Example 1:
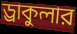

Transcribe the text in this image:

ড্রাকুলার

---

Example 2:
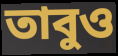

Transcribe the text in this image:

তাবুও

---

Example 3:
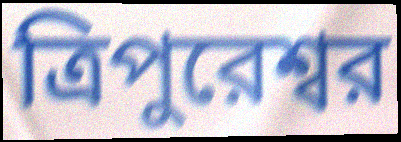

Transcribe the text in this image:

ত্রিপুরেশ্বর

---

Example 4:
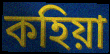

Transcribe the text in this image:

কহিয়া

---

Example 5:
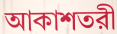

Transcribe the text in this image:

আকাশতরী